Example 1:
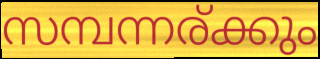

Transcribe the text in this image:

സമ്പന്നര്ക്കും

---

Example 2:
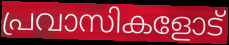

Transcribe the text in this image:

പ്രവാസികളോട്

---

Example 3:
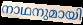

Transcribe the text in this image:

നാഥനുമായി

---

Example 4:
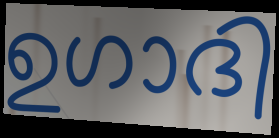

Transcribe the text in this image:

ഉഗാദി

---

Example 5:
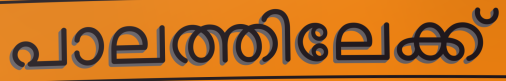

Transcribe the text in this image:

പാലത്തിലേക്ക്